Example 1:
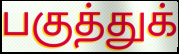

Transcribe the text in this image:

பகுத்துக்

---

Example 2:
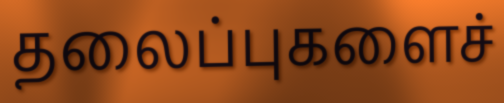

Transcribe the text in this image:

தலைப்புகளைச்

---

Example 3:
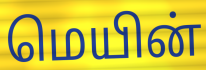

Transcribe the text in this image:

மெயின்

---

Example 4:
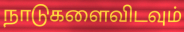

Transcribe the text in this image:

நாடுகளைவிடவும்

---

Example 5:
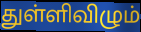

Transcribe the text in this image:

துள்ளிவிழும்